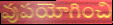
వుపయోగించి